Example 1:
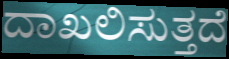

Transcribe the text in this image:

ದಾಖಲಿಸುತ್ತದೆ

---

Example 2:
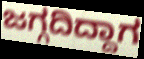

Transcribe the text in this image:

ಜಗ್ಗದಿದ್ದಾಗ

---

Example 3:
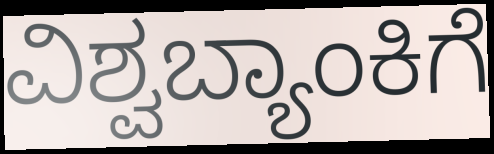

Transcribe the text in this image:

ವಿಶ್ವಬ್ಯಾಂಕಿಗೆ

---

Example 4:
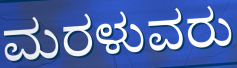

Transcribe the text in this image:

ಮರಳುವರು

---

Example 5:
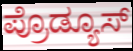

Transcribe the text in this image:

ಪ್ರೊಡ್ಯೂಸ್